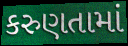
કરુણતામાં